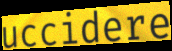
uccidere